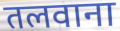
तलवाना